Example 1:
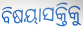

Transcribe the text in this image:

ବିଷୟାସକ୍ତିକୁ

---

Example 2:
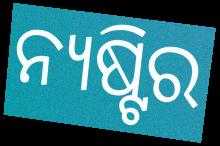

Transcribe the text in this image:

ନ୍ୟଷ୍ଟିର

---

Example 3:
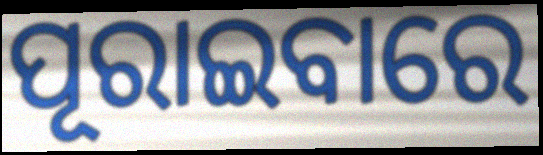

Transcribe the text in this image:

ପୂରାଇବାରେ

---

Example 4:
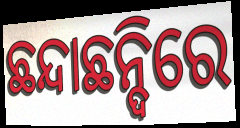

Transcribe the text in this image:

ଛନ୍ଦାଛନ୍ଦିରେ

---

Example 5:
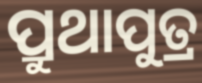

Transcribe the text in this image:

ପ୍ରୁଥାପୁତ୍ର